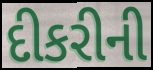
દીકરીની